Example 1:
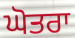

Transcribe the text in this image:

ਘੋਤਰਾ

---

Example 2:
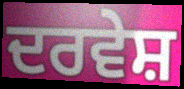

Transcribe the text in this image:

ਦਰਵੇਸ਼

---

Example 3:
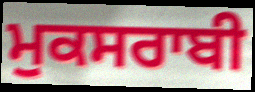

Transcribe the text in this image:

ਮੁਕਸਰਾਬੀ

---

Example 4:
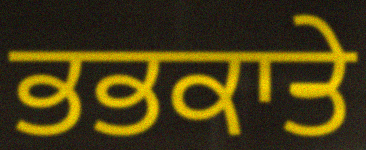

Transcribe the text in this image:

ਭਭਕਾਤੇ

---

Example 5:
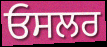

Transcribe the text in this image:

ਓਸਲਰ